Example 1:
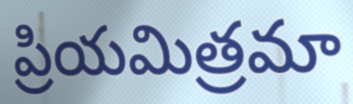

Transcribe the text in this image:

ప్రియమిత్రమా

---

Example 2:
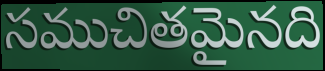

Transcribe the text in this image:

సముచితమైనది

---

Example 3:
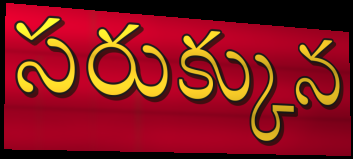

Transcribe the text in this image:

సరుక్కున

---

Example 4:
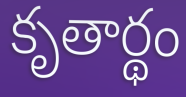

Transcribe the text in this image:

కృతార్థం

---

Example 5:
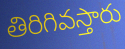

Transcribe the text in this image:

తిరిగివస్తారు